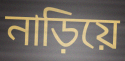
নাড়িয়ে